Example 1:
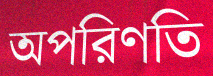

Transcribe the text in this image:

অপরিণতি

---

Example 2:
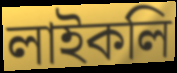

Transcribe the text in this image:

লাইকলি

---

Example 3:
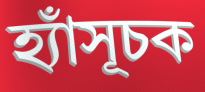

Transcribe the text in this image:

হ্যাঁসূচক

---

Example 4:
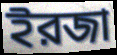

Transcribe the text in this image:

ইরজা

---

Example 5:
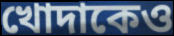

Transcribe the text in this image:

খোদাকেও